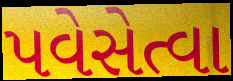
પવેસેત્વા